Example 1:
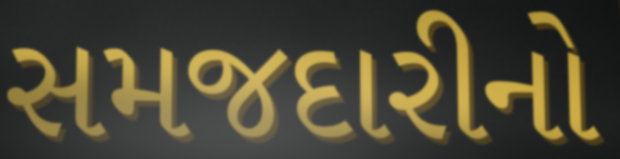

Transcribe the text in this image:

સમજદારીનો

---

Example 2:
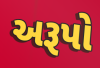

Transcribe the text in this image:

અરૂપો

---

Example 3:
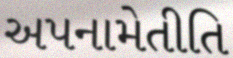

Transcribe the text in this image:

અપનામેતીતિ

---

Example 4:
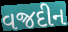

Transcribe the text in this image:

વજ્રદીન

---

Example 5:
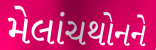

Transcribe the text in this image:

મેલાંચથોનને